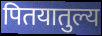
पितयातुल्य